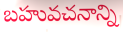
బహువచనాన్ని